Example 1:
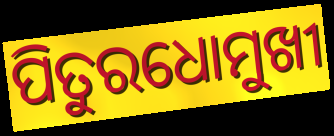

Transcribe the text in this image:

ପିତୁରଧୋମୁଖୀ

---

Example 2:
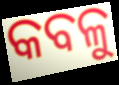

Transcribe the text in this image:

କବଳୁ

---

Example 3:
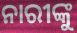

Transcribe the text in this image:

ନାରୀଙ୍କୁ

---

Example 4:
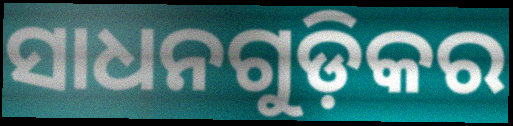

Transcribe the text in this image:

ସାଧନଗୁଡ଼ିକର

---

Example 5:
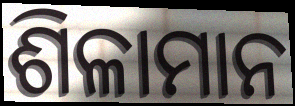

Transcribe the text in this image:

ଶିଳାମାନ